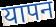
यापन